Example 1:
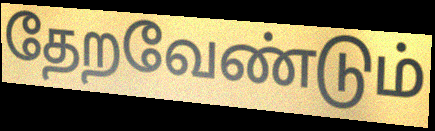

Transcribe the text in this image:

தேறவேண்டும்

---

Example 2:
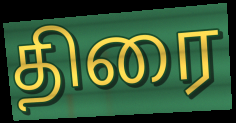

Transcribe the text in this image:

திரை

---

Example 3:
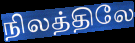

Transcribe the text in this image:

நிலத்திலே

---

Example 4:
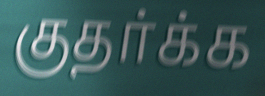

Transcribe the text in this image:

குதர்க்க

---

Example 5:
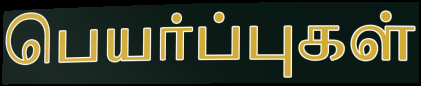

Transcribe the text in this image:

பெயர்ப்புகள்